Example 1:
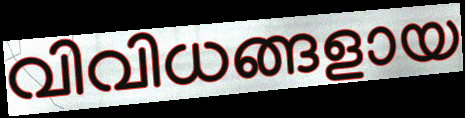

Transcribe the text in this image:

വിവിധങ്ങളായ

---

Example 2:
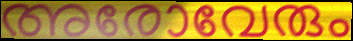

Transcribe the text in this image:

അരോവേരും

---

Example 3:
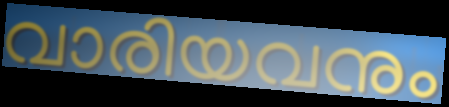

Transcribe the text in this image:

വാരിയവനും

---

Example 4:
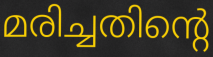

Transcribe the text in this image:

മരിച്ചതിന്റെ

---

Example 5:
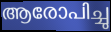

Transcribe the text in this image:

ആരോപിച്ചു